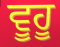
ਵੂਹੂ